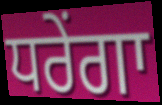
ਧਰੇਂਗਾ